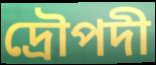
দ্রৌপদী